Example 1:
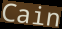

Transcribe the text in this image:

Cain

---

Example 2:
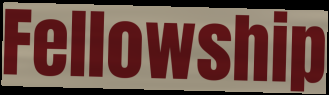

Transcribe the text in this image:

Fellowship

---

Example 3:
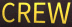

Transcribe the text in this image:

CREW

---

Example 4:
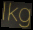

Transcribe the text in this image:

lkg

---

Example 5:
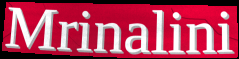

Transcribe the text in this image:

Mrinalini